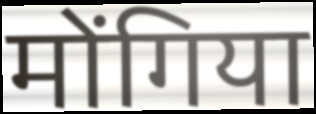
मोंगिया